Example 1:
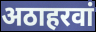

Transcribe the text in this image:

अठाहरवां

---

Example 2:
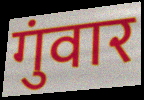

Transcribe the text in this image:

गुंवार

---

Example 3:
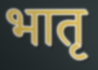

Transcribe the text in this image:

भातृ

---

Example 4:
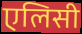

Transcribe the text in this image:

एलिसी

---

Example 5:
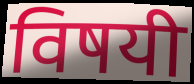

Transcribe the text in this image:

विषयी